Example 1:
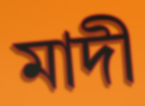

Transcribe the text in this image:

মাদী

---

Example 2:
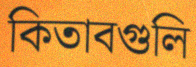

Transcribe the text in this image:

কিতাবগুলি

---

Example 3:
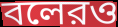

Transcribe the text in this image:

বলেরও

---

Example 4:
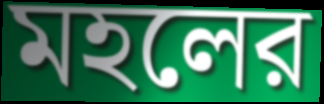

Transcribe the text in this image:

মহলের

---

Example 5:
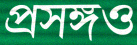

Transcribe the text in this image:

প্রসঙ্গও